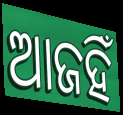
ଆଜହିଁ